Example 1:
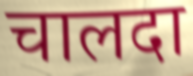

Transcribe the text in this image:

चालदा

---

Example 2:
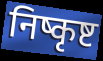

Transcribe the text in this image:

निष्कृष्ट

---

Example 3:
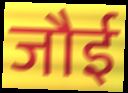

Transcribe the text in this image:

जौई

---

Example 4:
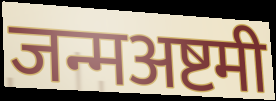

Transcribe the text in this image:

जन्मअष्टमी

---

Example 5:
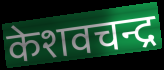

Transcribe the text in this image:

केशवचन्द्र